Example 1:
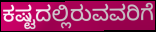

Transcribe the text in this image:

ಕಷ್ಟದಲ್ಲಿರುವವರಿಗೆ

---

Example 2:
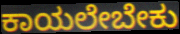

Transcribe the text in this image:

ಕಾಯಲೇಬೇಕು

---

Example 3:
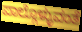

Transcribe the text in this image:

ಪಾಲ್ಗೊಳ್ಳುವಂತೆ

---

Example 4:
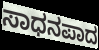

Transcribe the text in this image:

ಸಾಧನಪಾದ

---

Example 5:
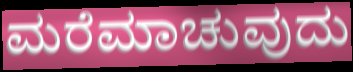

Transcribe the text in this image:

ಮರೆಮಾಚುವುದು